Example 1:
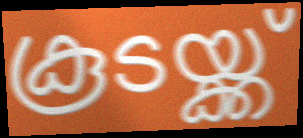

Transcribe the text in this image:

കൂടയ്ക്ക്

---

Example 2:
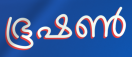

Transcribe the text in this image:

ഭൂഷൺ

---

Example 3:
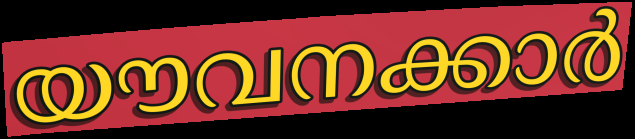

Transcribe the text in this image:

യൗവനക്കാർ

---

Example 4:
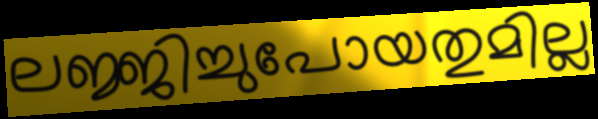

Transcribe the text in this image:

ലജ്ജിച്ചുപോയതുമില്ല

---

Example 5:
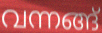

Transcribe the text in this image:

വന്നങ്ങ്